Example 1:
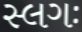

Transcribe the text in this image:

સ્લગઃ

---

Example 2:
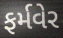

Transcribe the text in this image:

ફર્મવેર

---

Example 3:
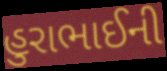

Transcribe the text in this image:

હુરાભાઈની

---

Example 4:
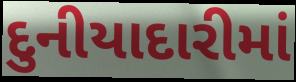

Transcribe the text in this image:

દુનીયાદારીમાં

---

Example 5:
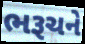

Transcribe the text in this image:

ભરૂચને